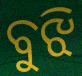
ବୁଝି